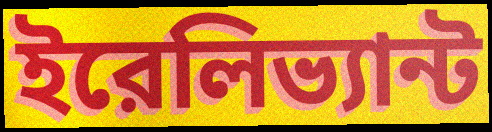
ইরেলিভ্যান্ট